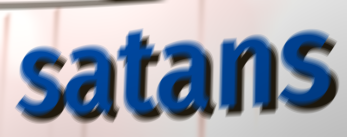
satans